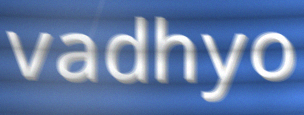
vadhyo